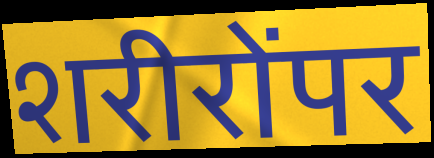
शरीरोंपर